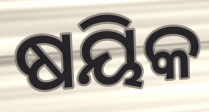
ଷୟିକ